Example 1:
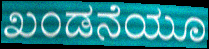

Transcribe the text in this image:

ಖಂಡನೆಯೂ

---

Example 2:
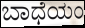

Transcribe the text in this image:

ಬಾಧೆಯಂ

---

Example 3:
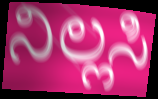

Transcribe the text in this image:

ನಿಲ್ಲಸಿ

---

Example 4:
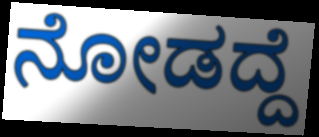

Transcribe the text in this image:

ನೋಡದ್ದೆ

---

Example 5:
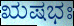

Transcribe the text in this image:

ಋಷಭಃ